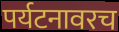
पर्यटनावरच